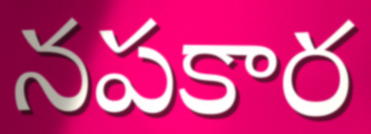
నపకార